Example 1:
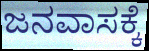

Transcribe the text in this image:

ಜನವಾಸಕ್ಕೆ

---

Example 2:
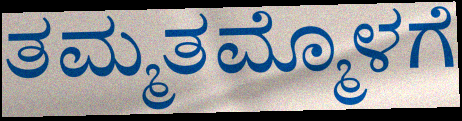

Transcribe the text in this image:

ತಮ್ಮತಮ್ಮೊಳಗೆ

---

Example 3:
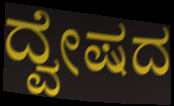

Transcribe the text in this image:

ದ್ವೇಷದ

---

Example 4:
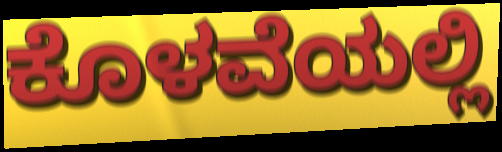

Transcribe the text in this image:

ಕೊಳವೆಯಲ್ಲಿ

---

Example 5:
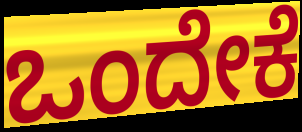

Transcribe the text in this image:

ಒಂದೇಕೆ